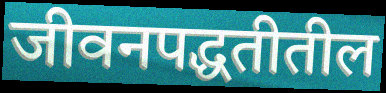
जीवनपद्धतीतील